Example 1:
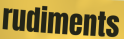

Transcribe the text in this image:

rudiments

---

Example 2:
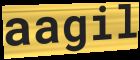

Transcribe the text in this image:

aagil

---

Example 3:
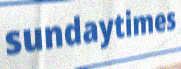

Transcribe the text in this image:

sundaytimes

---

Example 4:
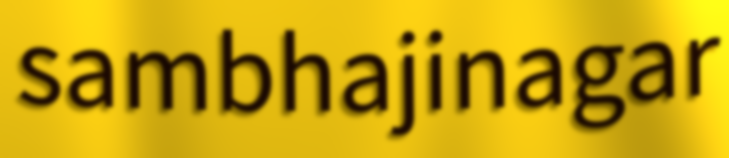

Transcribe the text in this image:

sambhajinagar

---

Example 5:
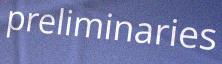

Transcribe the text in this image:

preliminaries